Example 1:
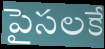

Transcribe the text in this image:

పైసలకే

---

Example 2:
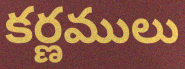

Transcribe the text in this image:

కర్ణములు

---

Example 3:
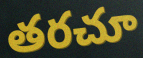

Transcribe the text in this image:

తరచూ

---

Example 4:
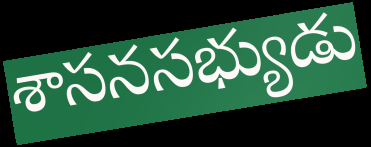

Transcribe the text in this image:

శాసనసభ్యుడు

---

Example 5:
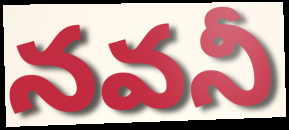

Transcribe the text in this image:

నవనీ